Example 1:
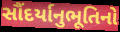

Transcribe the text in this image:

સૌંદર્યાનુભૂતિનો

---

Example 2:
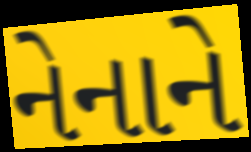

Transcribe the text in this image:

નેનાને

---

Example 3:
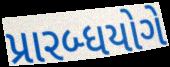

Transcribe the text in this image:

પ્રારબ્ધયોગે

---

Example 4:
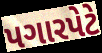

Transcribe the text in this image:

પગારપેટે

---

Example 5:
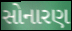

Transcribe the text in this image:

સોનારણ